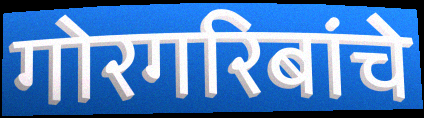
गोरगरिबांचे